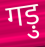
गड़ु